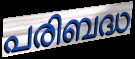
പരിബദ്ധ